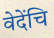
वेदेंचि